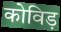
कोविड़